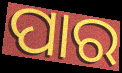
ପାର